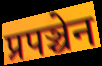
प्रपञ्चेन